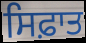
ਸਿਫ਼ਾਤ